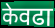
केवढा